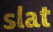
slat